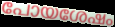
പോയശേഷം